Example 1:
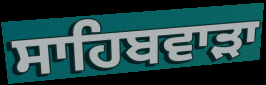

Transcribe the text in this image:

ਸਾਹਿਬਵਾੜਾ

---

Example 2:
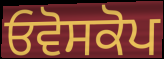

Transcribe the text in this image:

ਓਵੋਸਕੋਪ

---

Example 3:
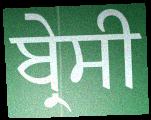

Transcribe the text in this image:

ਬ੍ਰੇਸੀ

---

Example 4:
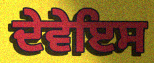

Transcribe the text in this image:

ਦੇਵੇਇਸ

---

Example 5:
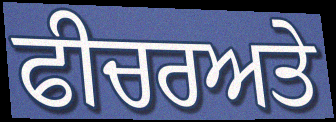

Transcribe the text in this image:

ਫੀਚਰਅਤੇ